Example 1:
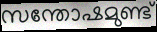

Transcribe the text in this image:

സന്തോഷമുണ്ട്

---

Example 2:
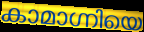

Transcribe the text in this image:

കാമാഗ്നിയെ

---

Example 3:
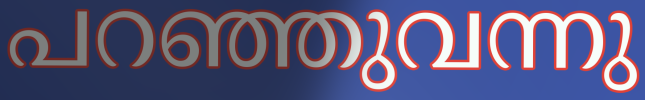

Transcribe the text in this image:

പറഞ്ഞുവന്നു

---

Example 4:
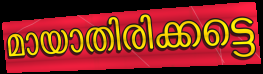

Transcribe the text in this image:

മായാതിരിക്കട്ടെ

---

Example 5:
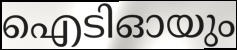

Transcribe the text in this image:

ഐടിഓയും